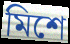
মিশে